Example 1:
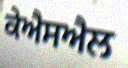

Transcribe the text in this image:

ਕੇਐਸਐਲ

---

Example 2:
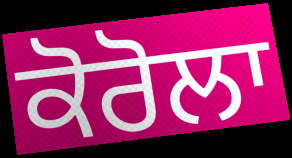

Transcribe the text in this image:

ਕੋਰੋਲਾ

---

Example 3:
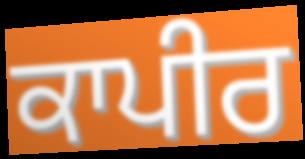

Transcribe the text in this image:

ਕਾਪੀਰ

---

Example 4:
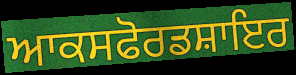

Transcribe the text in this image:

ਆਕਸਫੋਰਡਸ਼ਾਇਰ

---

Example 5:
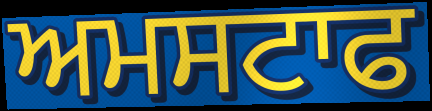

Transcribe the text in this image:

ਅਮਸਟਾਫ